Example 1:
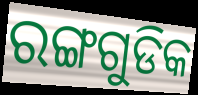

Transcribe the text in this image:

ରଙ୍ଗଗୁଡିକ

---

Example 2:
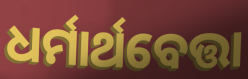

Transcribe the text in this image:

ଧର୍ମାର୍ଥବେତ୍ତା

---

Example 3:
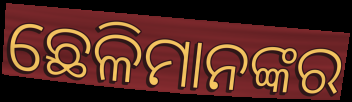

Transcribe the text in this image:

ଛେଳିମାନଙ୍କର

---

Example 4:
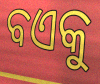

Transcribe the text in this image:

ବଏକୁ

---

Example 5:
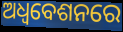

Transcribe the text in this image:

ଅଧ୍ଵବେଶନରେ